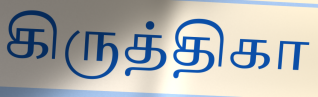
கிருத்திகா